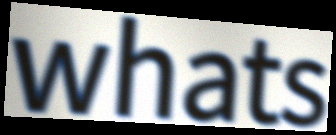
whats